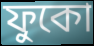
ফুকো